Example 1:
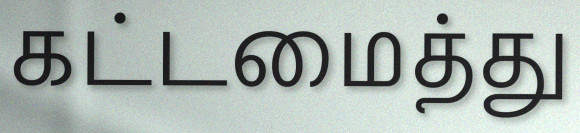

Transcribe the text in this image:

கட்டமைத்து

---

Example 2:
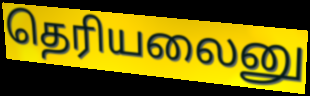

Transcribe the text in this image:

தெரியலைனு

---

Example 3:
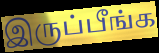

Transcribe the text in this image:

இருப்பீங்க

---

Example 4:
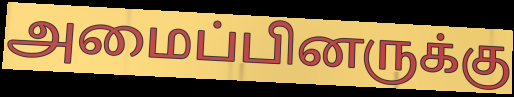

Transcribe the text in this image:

அமைப்பினருக்கு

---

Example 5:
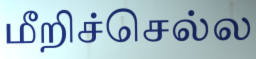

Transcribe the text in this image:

மீறிச்செல்ல